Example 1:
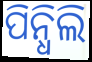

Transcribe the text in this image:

ପିନ୍ଧିଲି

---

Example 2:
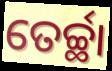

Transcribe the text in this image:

ତେର୍ଚ୍ଛା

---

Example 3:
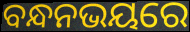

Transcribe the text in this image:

ବନ୍ଧନଭୟରେ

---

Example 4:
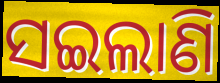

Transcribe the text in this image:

ସଇଲାଣି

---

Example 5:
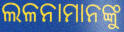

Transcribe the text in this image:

ଲଳନାମାନଙ୍କୁ